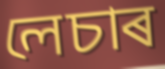
লেচাৰ